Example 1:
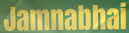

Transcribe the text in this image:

Jamnabhai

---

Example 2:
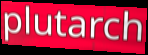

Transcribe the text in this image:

plutarch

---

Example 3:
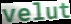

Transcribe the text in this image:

velut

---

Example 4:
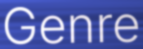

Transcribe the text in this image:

Genre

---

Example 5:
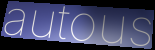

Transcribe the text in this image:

autous